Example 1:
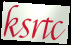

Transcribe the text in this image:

ksrtc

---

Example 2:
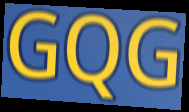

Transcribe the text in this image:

GQG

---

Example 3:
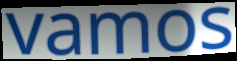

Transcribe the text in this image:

vamos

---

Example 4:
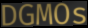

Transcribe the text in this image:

DGMOs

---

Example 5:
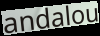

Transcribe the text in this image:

andalou